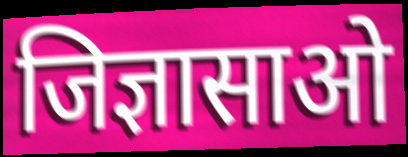
जिज्ञासाओ